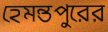
হেমন্তপুরের